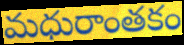
మధురాంతకం